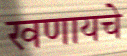
खणायचे